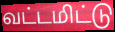
வட்டமிட்டு